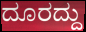
ದೂರದ್ದು